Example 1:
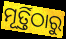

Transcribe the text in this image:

ମୂର୍ତ୍ତିଠାରୁ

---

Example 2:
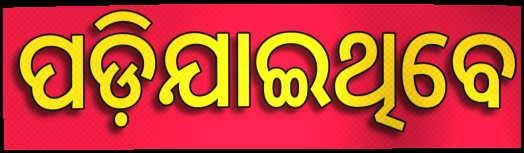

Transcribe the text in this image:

ପଡ଼ିଯାଇଥିବେ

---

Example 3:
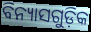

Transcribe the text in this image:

ବିନ୍ୟାସଗୁଡ଼ିକ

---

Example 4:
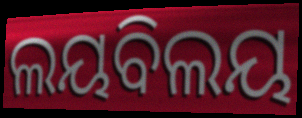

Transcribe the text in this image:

ଲୟବିଲୟ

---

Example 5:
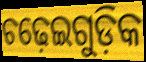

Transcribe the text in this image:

ଚଢ଼େଇଗୁଡ଼ିକ